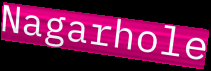
Nagarhole